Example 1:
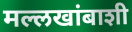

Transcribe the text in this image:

मल्लखांबाशी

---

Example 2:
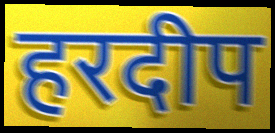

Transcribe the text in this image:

हरदीप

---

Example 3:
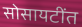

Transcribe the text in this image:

सोसायटींत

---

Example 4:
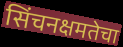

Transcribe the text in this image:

सिंचनक्षमतेचा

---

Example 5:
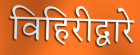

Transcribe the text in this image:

विहिरीद्वारे